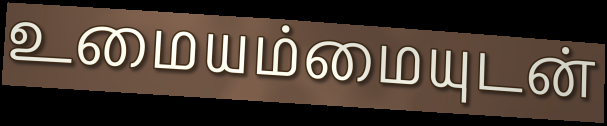
உமையம்மையுடன்